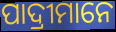
ପାଦ୍ରୀମାନେ